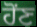
ਹੋਂਣ